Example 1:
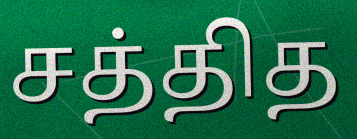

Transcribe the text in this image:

சத்தித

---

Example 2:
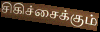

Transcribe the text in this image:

சிகிச்சைக்கும்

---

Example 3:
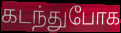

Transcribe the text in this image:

கடந்துபோக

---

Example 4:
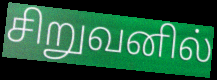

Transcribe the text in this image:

சிறுவனில்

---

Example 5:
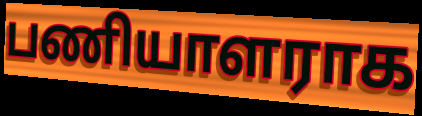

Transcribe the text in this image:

பணியாளராக